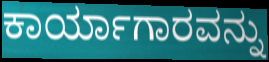
ಕಾರ್ಯಾಗಾರವನ್ನು